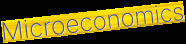
Microeconomics